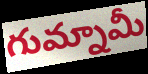
గుమ్నామీ